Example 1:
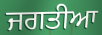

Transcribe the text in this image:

ਜਗਤੀਆ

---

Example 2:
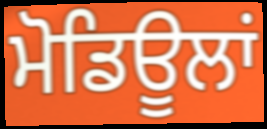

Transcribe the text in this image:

ਮੋਡਿਊਲਾਂ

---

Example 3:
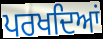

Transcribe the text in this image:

ਪਰਖਦਿਆਂ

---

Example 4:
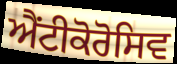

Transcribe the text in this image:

ਐਂਟੀਕੋਰੋਸਿਵ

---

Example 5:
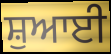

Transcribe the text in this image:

ਸ਼ੁਆਈ